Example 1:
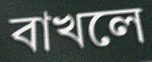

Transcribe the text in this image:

বাখলে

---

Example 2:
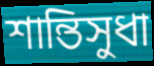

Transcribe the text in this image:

শান্তিসুধা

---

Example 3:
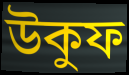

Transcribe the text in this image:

উকুফ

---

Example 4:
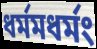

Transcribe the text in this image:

ধর্মমধর্মং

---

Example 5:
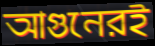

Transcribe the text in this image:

আগুনেরই